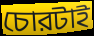
চোরটাই